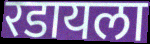
रडायला